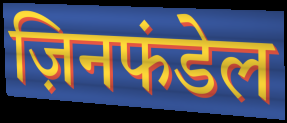
ज़िनफंडेल